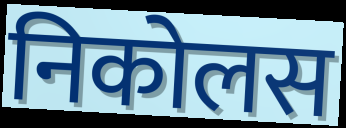
निकोलस